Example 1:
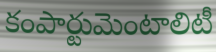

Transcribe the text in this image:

కంపార్టుమెంటాలిటీ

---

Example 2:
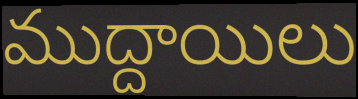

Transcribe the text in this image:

ముద్దాయిలు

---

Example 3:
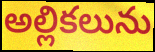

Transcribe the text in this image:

అల్లికలును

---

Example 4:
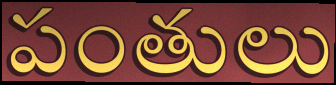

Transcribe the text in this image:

పంతులు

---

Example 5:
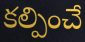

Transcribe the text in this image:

కల్పించే